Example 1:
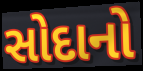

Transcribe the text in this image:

સોદાનો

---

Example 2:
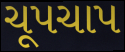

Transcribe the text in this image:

ચૂપચાપ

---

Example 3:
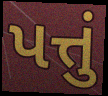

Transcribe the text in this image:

પત્તું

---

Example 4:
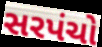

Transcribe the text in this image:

સરપંચો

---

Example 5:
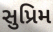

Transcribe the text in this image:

સુપ્રિમ